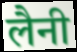
लैनी